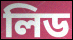
লিড